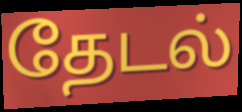
தேடல்